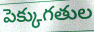
పెక్కుగతుల